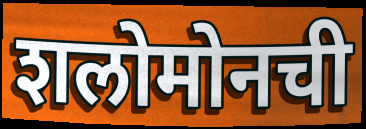
शलोमोनची